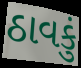
ઠાવકું